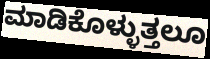
ಮಾಡಿಕೊಳ್ಳುತ್ತಲೂ